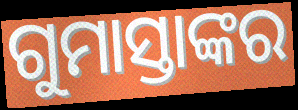
ଗୁମାସ୍ତାଙ୍କର